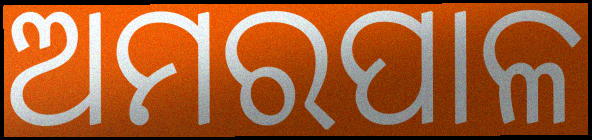
ଅମରପାଳ